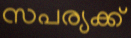
സപര്യക്ക്